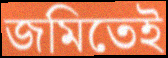
জমিতেই